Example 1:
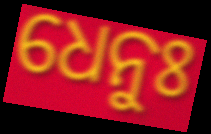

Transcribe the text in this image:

ଧେନୁଃ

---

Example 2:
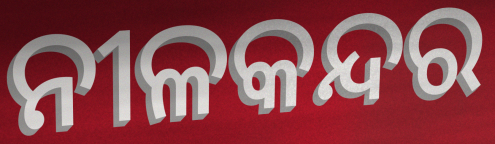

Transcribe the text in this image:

ନୀଳକନ୍ଦର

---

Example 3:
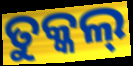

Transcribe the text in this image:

ତୁକ୍କଲ୍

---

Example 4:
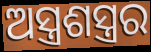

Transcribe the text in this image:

ଅସ୍ତ୍ରଶସ୍ତ୍ରର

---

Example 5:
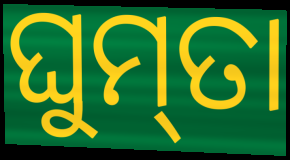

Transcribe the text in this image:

ଘୁମ୍‌ତା